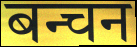
बन्चन